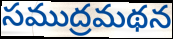
సముద్రమథన